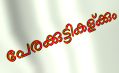
പേരക്കുട്ടികള്ക്കും